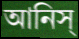
আনিস্